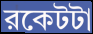
রকেটটা